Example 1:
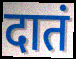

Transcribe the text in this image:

दातं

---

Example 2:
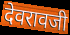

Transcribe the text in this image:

देवरावजी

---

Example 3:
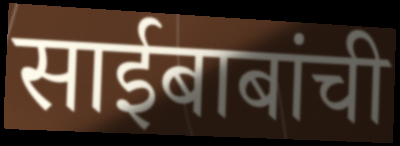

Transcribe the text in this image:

साईबाबांची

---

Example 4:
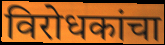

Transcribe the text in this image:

विरोधकांचा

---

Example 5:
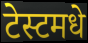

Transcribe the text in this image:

टेस्टमधे